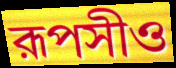
রূপসীও